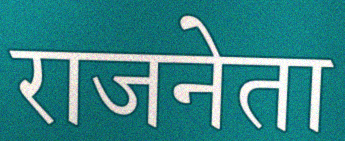
राजनेता